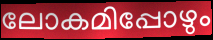
ലോകമിപ്പോഴും